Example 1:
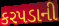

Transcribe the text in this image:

કરપડાની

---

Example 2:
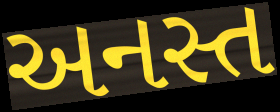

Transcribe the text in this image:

અનસ્ત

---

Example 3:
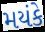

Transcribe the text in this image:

મયંકે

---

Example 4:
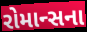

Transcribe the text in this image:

રોમાન્સના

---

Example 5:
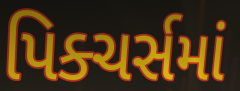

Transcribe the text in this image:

પિક્ચર્સમાં